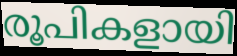
രൂപികളായി